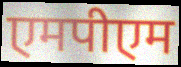
एमपीएम